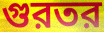
গুরতর